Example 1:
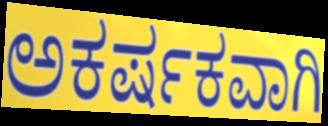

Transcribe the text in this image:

ಅಕರ್ಷಕವಾಗಿ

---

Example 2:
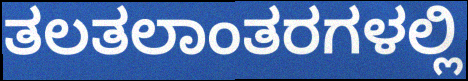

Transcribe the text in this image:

ತಲತಲಾಂತರಗಳಲ್ಲಿ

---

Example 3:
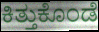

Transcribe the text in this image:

ಕಿತ್ತುಕೊಂಡೆ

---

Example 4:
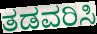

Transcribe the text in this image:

ತಡವರಿಸಿ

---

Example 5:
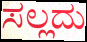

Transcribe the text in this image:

ಸಲ್ಲದು